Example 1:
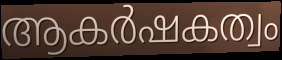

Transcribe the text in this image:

ആകർഷകത്വം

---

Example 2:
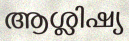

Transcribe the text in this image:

ആശ്ലിഷ്യ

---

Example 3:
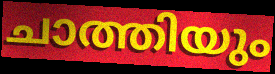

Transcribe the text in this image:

ചാത്തിയും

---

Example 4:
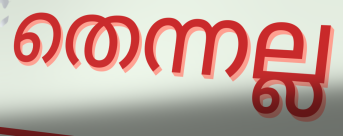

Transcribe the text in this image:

തെന്നല്ല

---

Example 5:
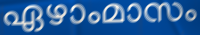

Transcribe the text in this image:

ഏഴാംമാസം